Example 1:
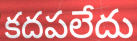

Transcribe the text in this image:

కదపలేదు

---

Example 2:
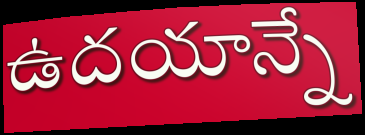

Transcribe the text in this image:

ఉదయాన్నే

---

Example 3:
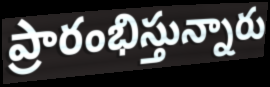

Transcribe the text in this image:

ప్రారంభిస్తున్నారు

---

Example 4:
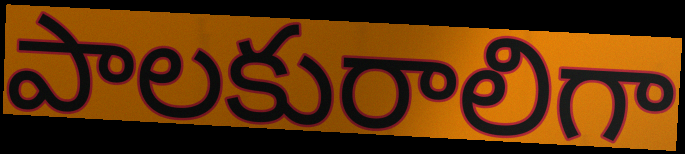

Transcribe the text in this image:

పాలకురాలిగా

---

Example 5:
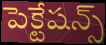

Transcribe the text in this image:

పెక్టేషన్స్